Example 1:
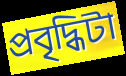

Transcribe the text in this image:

প্রবৃদ্ধিটা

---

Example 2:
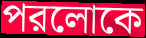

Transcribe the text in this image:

পরলোকে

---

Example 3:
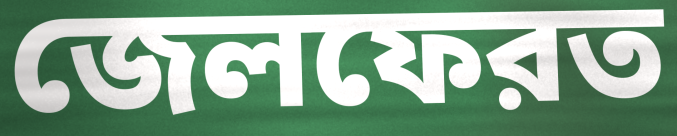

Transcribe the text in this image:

জেলফেরত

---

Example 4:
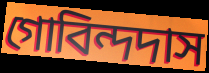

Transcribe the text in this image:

গোবিন্দদাস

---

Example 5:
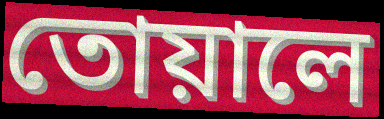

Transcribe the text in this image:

তোয়ালে